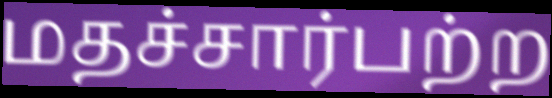
மதச்சார்பற்ற